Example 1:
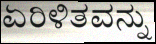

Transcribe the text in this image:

ಏರಿಳಿತವನ್ನು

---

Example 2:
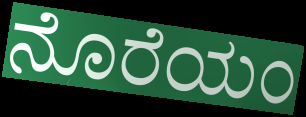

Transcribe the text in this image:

ನೊರೆಯಂ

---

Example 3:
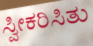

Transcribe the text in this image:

ಸ್ವೀಕರಿಸಿತು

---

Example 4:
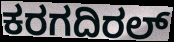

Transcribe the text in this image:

ಕರಗದಿರಲ್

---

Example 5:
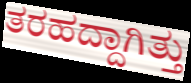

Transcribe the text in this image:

ತರಹದ್ದಾಗಿತ್ತು